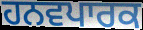
ਹਨਵਪਾਰਕ